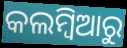
କଲମ୍ବିଆରୁ